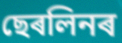
ছেৰলিনৰ